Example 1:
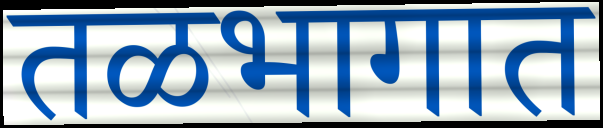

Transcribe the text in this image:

तळभागात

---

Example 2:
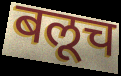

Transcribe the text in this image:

बलूच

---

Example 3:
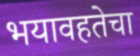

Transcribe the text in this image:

भयावहतेचा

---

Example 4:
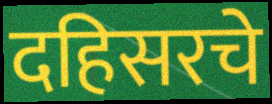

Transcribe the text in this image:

दहिसरचे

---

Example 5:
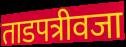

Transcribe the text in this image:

ताडपत्रीवजा